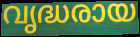
വൃദ്ധരായ